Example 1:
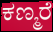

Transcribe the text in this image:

ಕಣ್ಮರೆ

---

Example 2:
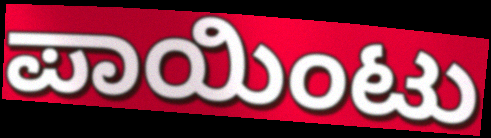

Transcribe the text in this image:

ಪಾಯಿಂಟು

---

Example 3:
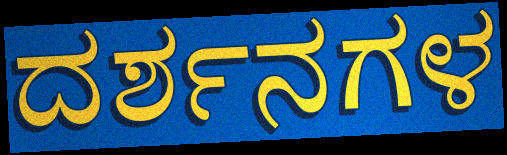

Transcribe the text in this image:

ದರ್ಶನಗಳ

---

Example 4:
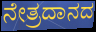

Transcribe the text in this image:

ನೇತ್ರದಾನದ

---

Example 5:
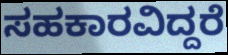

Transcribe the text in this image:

ಸಹಕಾರವಿದ್ದರೆ